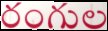
రంగుల